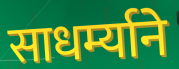
साधर्म्याने